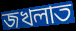
জখলাত